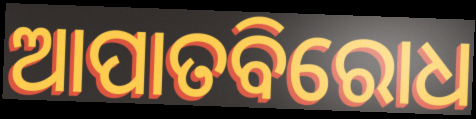
ଆପାତବିରୋଧ